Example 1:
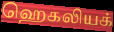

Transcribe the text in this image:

ஹெகலியக்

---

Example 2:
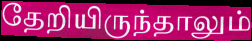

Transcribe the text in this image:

தேறியிருந்தாலும்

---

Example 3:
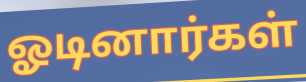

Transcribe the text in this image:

ஓடினார்கள்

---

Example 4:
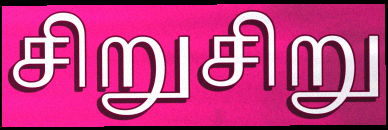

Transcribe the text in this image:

சிறுசிறு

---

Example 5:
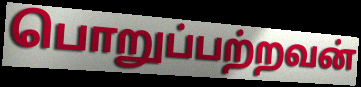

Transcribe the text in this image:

பொறுப்பற்றவன்